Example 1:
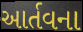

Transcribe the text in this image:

આર્તવના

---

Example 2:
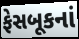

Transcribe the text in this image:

ફેસબૂકનાં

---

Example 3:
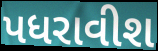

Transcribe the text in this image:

પધરાવીશ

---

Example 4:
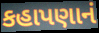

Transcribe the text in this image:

કહાપણાનં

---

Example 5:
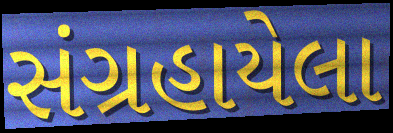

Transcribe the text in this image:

સંગ્રહાયેલા